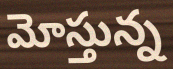
మోస్తున్న